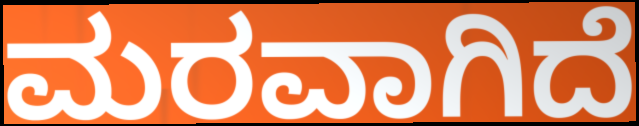
ಮರವಾಗಿದೆ